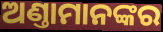
ଅଣ୍ତାମାନଙ୍କର